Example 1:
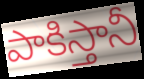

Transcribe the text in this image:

పాకిస్తానీ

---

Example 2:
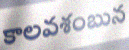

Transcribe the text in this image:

కాలవశంబున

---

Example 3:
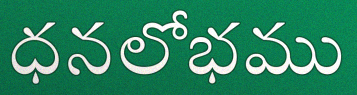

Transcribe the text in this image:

ధనలోభము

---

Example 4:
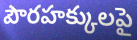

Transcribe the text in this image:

పౌరహక్కులపై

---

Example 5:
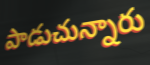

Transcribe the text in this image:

పాడుచున్నారు